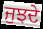
ਜੁਝਦੇ